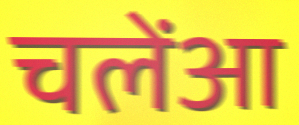
चलेंआ